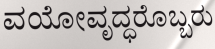
ವಯೋವೃದ್ಧರೊಬ್ಬರು